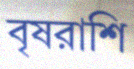
বৃষরাশি